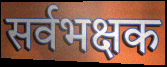
सर्वभक्षक